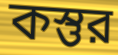
কস্তুর